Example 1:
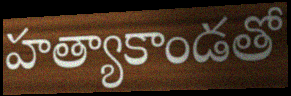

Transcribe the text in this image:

హత్యాకాండతో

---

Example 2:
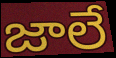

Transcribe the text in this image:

జాలే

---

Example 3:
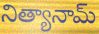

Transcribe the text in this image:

నిత్యానామ్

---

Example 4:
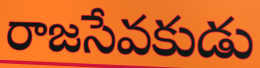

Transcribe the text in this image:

రాజసేవకుడు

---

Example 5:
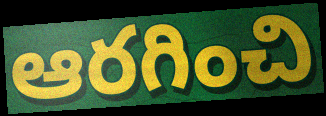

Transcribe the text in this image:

ఆరగించి